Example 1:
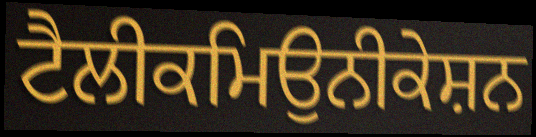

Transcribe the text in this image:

ਟੈਲੀਕਮਿਉਨੀਕੇਸ਼ਨ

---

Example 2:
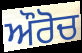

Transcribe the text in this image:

ਔਰੋਚ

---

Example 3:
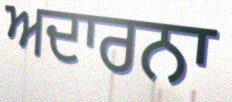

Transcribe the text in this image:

ਅਦਾਰਨਾ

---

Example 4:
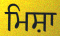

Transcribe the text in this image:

ਮਿਸ਼ਾ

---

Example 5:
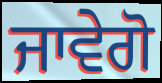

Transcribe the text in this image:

ਜਾਵੇਗੋ